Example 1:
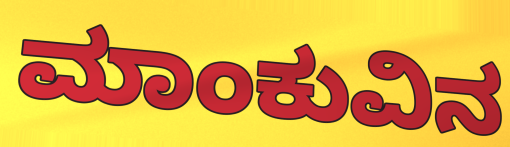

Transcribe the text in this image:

ಮಾಂಕುವಿನ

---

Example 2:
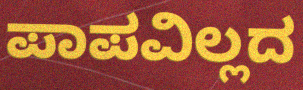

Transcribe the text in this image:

ಪಾಪವಿಲ್ಲದ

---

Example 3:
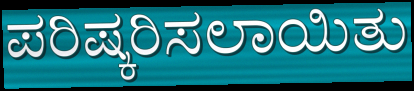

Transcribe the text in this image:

ಪರಿಷ್ಕರಿಸಲಾಯಿತು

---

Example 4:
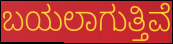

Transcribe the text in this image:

ಬಯಲಾಗುತ್ತಿವೆ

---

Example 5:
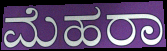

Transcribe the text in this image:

ಮೆಹರಾ